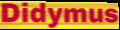
Didymus